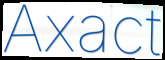
Axact